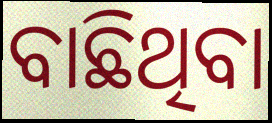
ବାଛିଥିବା